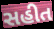
સહીત